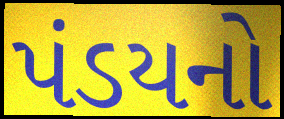
પંડયનો